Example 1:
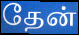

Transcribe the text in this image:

தேன்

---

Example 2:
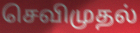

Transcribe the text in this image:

செவிமுதல்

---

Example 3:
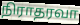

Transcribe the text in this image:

நிராதரவா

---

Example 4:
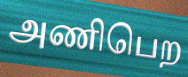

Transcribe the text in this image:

அணிபெற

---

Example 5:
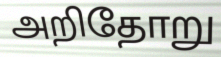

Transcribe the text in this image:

அறிதோறு